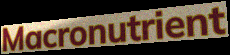
Macronutrient